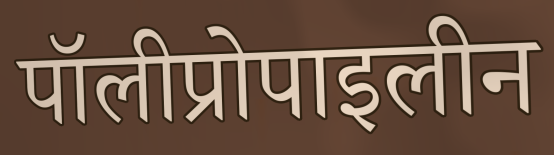
पॉलीप्रोपाइलीन